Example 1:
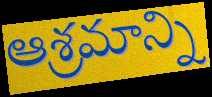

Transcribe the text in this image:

ఆశ్రమాన్ని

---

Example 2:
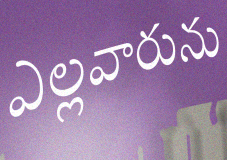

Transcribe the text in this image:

ఎల్లవారును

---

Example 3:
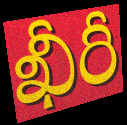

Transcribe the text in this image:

ఖీరీ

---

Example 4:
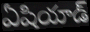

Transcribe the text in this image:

ఏషియాడ్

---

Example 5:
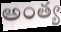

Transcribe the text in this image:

అంత్య